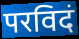
परविदं